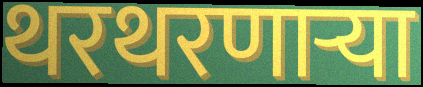
थरथरणाऱ्या